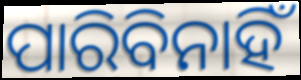
ପାରିବିନାହିଁ